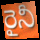
రైనీ